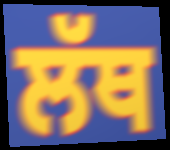
ਲੱਥ